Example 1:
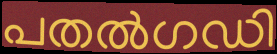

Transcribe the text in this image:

പതൽഗഡി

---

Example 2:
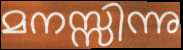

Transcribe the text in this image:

മനസ്സിന്നു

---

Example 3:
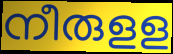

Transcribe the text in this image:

നീരുളള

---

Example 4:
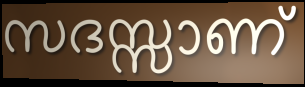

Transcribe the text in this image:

സദസ്സാണ്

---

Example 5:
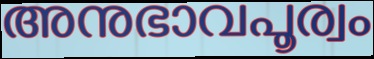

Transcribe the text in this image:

അനുഭാവപൂര്വം